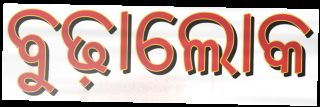
ବୁଢ଼ାଲୋକ